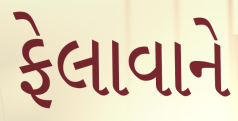
ફેલાવાને